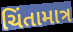
ચિંતામાત્ર